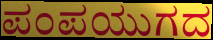
ಪಂಪಯುಗದ